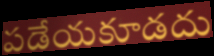
పడేయకూడదు